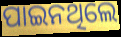
ପାଇନଥିଲେ